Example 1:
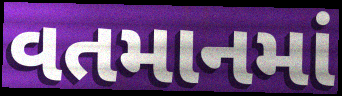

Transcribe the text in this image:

વતમાનમાં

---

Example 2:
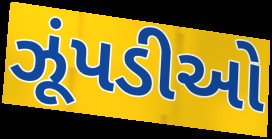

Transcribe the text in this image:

ઝૂંપડીઓ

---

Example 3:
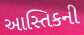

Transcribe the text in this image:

આસ્તિકની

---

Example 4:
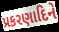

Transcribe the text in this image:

પ્રકરણાદિને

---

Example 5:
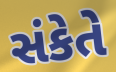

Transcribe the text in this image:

સંકેતે